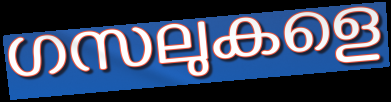
ഗസലുകളെ